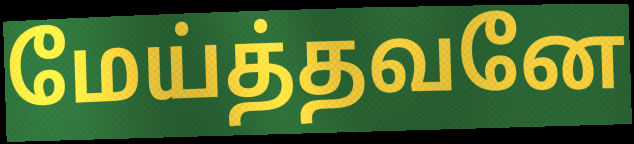
மேய்த்தவனே